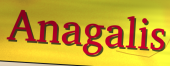
Anagalis